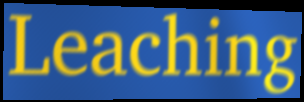
Leaching